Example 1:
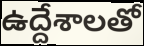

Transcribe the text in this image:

ఉద్దేశాలతో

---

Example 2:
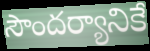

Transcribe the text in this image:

సౌందర్యానికే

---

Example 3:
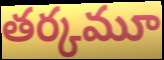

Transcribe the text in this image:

తర్కమూ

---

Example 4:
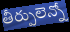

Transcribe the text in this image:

తీర్పులెన్నో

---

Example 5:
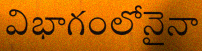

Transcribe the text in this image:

విభాగంలోనైనా